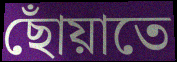
ছোঁয়াতে